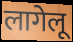
लागेलू